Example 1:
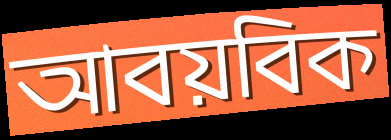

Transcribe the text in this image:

আবয়বিক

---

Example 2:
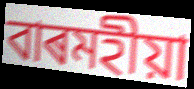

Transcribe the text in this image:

বাৰমহীয়া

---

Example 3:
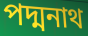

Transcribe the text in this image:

পদ্মনাথ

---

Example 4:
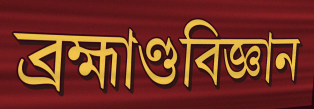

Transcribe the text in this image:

ব্ৰহ্মাণ্ডবিজ্ঞান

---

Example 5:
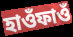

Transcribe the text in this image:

হাওঁফাওঁ